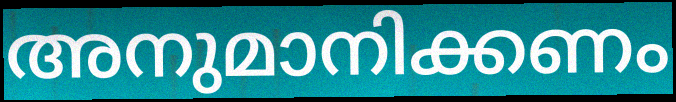
അനുമാനിക്കണം